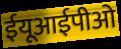
ईयूआईपीओ